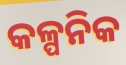
କଳ୍ପନିକ